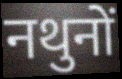
नथुनों